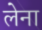
लेना